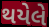
થયેલે